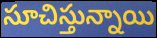
సూచిస్తున్నాయి